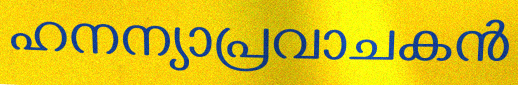
ഹനന്യാപ്രവാചകൻ